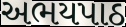
અભયપાઠ